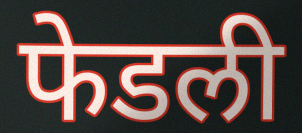
फेडली